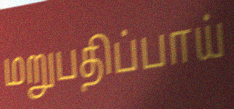
மறுபதிப்பாய்